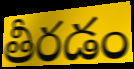
తీరడం